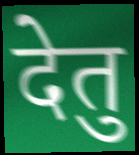
देतु